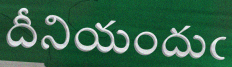
దీనియందుఁ